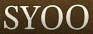
SYOO